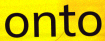
onto